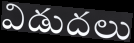
విడుదలు